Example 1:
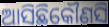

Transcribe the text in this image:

ଆସିଛିକୌଣସି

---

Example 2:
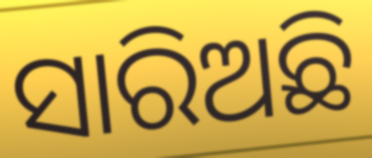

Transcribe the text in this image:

ସାରିଅଛି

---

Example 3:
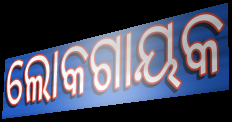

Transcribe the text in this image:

ଲୋକଗାୟକ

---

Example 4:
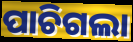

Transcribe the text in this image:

ପାଚିଗଲା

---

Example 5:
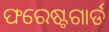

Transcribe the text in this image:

ଫରେଷ୍ଟଗାର୍ଡ